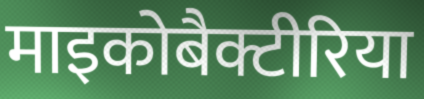
माइकोबैक्टीरिया